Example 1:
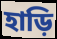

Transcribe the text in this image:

হাড়ি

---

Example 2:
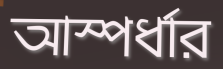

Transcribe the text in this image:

আস্পর্ধার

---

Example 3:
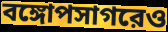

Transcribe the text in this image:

বঙ্গোপসাগরেও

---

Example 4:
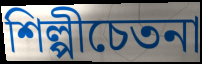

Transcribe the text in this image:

শিল্পীচেতনা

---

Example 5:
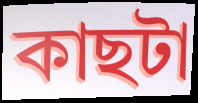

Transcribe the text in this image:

কাছটা